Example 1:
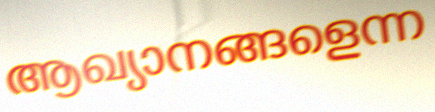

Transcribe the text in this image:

ആഖ്യാനങ്ങളെന്ന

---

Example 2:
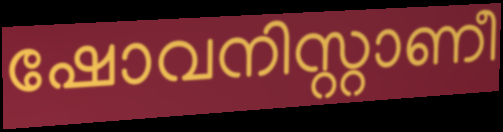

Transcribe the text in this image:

ഷോവനിസ്റ്റാണീ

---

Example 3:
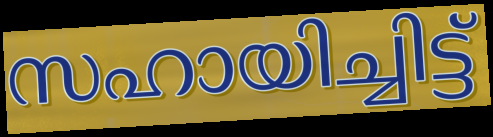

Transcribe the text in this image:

സഹായിച്ചിട്ട്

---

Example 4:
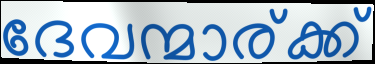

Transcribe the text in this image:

ദേവന്മാര്ക്ക്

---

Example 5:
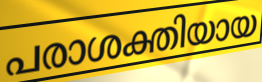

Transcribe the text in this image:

പരാശക്തിയായ